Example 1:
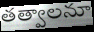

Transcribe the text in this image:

తత్వాలనూ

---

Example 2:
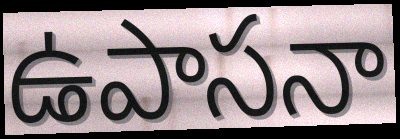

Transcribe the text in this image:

ఉపాసనా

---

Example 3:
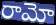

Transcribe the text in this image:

రామో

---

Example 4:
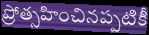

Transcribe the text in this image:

ప్రోత్సహించినప్పటికీ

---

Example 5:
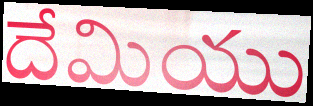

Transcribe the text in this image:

దేమియు